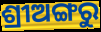
ଶ୍ରୀଅଙ୍ଗରୁ